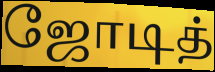
ஜோடித்